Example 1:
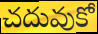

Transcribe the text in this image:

చదువుకో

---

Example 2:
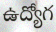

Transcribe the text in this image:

ఉద్యోగ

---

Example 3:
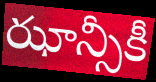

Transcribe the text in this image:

ఝాన్సీకీ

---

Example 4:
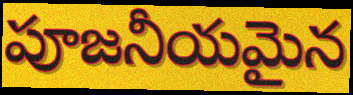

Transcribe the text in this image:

పూజనీయమైన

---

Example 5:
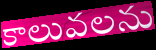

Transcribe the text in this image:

కాలువలను